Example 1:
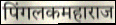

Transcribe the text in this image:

पिंगलकमहाराज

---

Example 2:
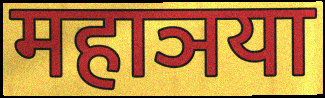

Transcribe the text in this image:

महाञया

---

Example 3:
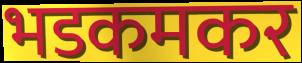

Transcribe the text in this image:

भडकमकर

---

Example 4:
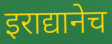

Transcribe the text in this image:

इराद्यानेच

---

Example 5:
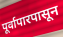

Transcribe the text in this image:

पूर्वापारपासून